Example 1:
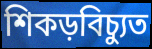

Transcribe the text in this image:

শিকড়বিচ্যুত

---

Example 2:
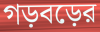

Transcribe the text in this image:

গড়বড়ের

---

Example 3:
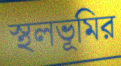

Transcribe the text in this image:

স্থলভূমির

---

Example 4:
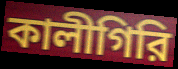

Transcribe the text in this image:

কালীগিরি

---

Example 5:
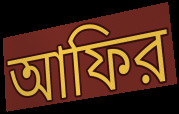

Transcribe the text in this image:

আফির